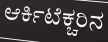
ಆರ್ಕಿಟೆಕ್ಚರಿನ